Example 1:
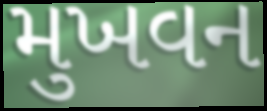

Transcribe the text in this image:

મુખવન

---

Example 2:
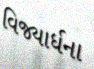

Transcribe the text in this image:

વિજ્યાર્ધના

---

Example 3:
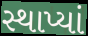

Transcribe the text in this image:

સ્થાપ્યાં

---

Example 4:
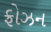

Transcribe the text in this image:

ફ્રોઝન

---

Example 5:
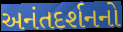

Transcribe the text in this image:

અનંતદર્શનનો